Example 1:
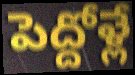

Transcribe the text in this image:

పెద్దోళ్లే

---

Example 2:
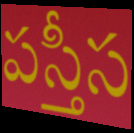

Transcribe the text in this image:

పస్తీస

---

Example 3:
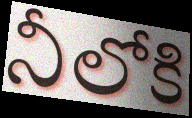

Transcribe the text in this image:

నీలోకి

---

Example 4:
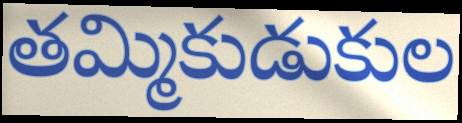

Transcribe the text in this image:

తమ్మికుడుకుల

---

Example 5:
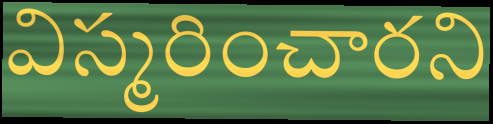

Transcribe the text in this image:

విస్మరించారని